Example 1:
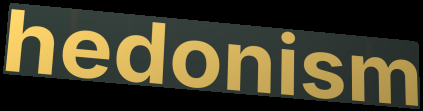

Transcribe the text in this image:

hedonism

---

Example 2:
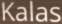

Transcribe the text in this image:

Kalas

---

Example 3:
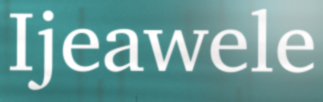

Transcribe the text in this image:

Ijeawele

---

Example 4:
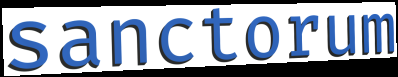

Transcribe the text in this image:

sanctorum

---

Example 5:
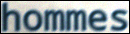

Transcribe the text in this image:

hommes